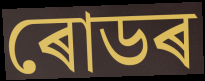
ৰোডৰ